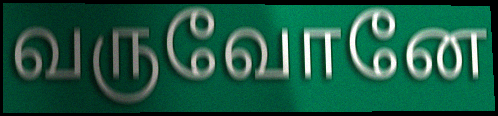
வருவோனே